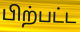
பிற்பட்ட